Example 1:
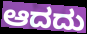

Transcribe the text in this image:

ಆದದು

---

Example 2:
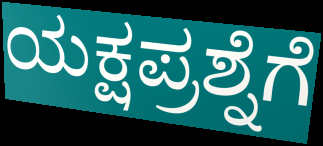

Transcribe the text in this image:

ಯಕ್ಷಪ್ರಶ್ನೆಗೆ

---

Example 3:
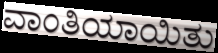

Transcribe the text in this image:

ವಾಂತಿಯಾಯಿತು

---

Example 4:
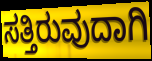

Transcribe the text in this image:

ಸತ್ತಿರುವುದಾಗಿ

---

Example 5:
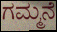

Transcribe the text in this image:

ಗಮ್ಮನೆ